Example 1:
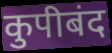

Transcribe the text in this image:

कुपीबंद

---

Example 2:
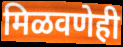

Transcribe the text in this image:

मिळवणेही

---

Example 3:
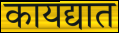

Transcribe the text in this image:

कायद्यात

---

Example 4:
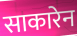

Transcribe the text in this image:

साकारेन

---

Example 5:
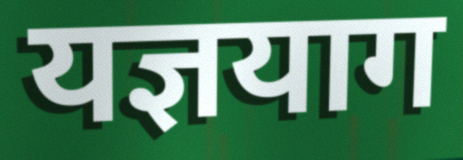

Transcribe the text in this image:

यज्ञयाग